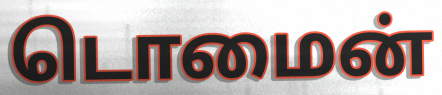
டொமைன்